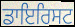
ਡਾਇਰਿਸਟ